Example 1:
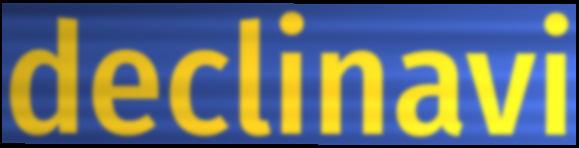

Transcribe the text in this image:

declinavi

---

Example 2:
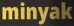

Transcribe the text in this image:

minyak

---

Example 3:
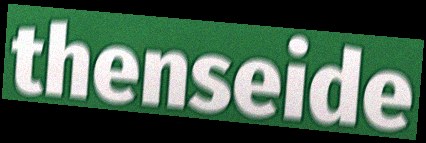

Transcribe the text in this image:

thenseide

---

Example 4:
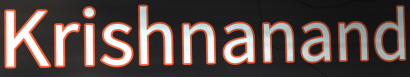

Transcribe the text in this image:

Krishnanand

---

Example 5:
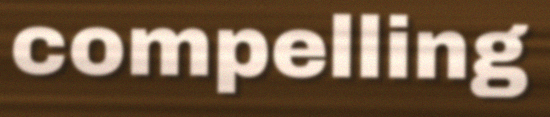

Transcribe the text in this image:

compelling